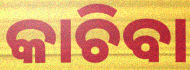
କାଚିବା